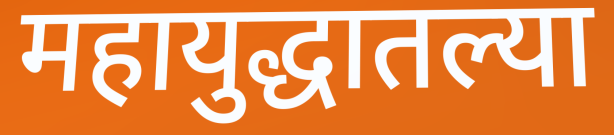
महायुद्धातल्या